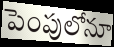
పెంపులోనూ